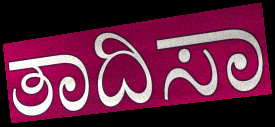
ತಾದಿಸಾ